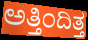
ಅತ್ತಿಂದಿತ್ತ